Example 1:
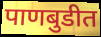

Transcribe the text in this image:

पाणबुडीत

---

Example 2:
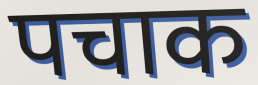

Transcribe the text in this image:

पचाक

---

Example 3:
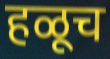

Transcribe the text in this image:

हळूच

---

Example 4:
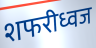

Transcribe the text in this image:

शफरीध्वज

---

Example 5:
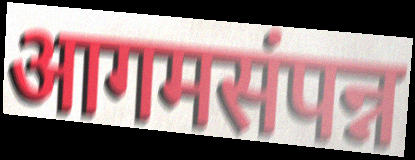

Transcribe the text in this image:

आगमसंपन्न